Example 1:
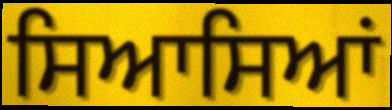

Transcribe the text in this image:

ਸਿਆਸਿਆਂ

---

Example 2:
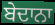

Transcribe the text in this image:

ਬੇਦਾਨਾ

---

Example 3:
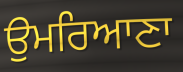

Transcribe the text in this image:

ਉਮਰਿਆਣਾ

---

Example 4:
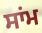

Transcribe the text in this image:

ਸਾਂਮ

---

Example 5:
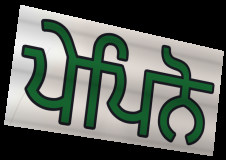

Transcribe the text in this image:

ਪੇਪਿਨੋ